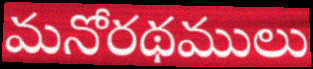
మనోరథములు